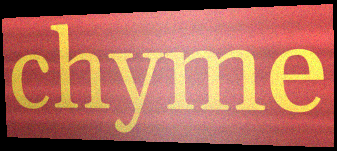
chyme